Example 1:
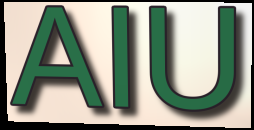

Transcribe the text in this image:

AIU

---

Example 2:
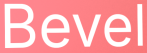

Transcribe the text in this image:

Bevel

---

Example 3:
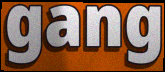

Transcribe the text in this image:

gang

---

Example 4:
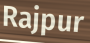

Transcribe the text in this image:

Rajpur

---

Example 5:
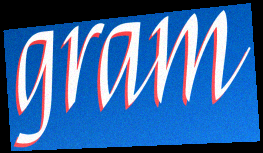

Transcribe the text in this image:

gram